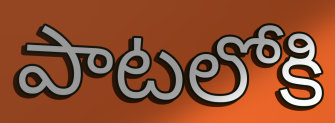
పాటలోకి